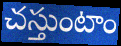
చస్తుంటాం